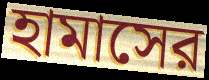
হামাসের